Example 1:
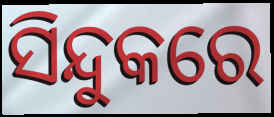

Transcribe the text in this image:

ସିନ୍ଦୁକରେ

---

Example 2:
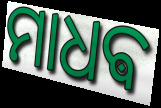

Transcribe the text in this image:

ମାଧଵ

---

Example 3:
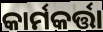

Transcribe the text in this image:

କାର୍ମକର୍ତ୍ତା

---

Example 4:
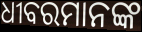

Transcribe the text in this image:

ଧୀବରମାନଙ୍କ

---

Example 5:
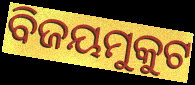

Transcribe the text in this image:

ବିଜୟମୁକୁଟ